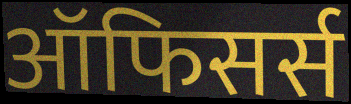
ऑफिसर्स